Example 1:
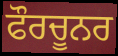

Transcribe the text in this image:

ਫੌਰਚੂਨਰ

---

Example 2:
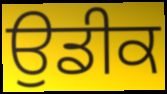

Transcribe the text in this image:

ਉਡੀਕ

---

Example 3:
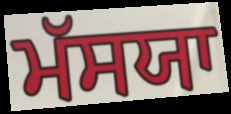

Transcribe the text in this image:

ਮੱਸਯਾ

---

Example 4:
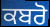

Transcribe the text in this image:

ਕਬਰੋ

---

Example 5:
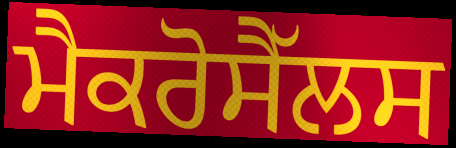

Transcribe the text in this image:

ਮੈਕਰੋਸੈੱਲਸ